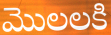
మొలలకి